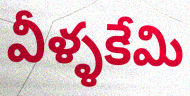
వీళ్ళకేమి